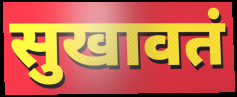
सुखावतं